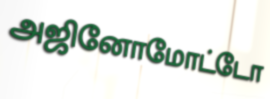
அஜினோமோட்டோ